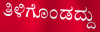
ತಿಳಿಗೊಂಡದ್ದು